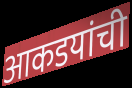
आकडयांची